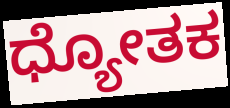
ಧ್ಯೋತಕ